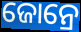
ଜୋନ୍ରେ